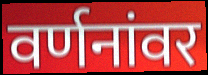
वर्णनांवर